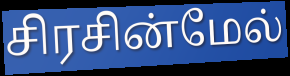
சிரசின்மேல்